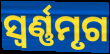
ସ୍ଵର୍ଣ୍ଣମୃଗ